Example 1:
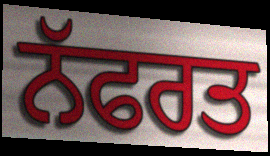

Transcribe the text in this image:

ਨੱਫਰਤ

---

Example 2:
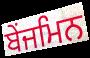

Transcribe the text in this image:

ਬੇਂਜਮਿਨ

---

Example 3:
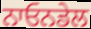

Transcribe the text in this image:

ਨਾਓਨਡੇਲ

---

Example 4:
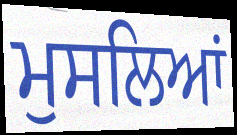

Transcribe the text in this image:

ਮੁਸਲਿਆਂ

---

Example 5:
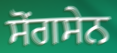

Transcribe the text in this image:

ਸੋਂਗਸੇਨ